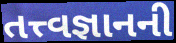
તત્ત્વજ્ઞાનની